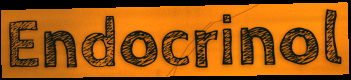
Endocrinol